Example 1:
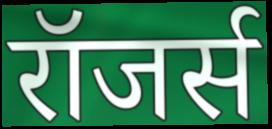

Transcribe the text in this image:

रॉजर्स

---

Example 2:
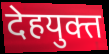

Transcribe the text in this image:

देहयुक्त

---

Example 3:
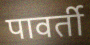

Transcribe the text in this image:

पावर्ती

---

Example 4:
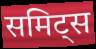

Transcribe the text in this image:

समिट्स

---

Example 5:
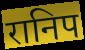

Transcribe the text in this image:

रानिप